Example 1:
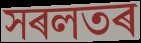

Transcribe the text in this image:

সৰলতৰ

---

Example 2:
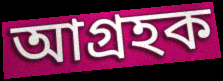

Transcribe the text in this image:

আগ্ৰহক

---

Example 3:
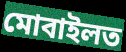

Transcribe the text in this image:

মোবাইলত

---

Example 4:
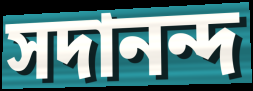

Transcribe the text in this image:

সদানন্দ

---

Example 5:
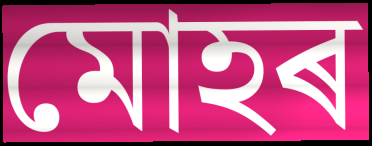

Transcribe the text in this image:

মোহৰ